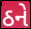
ઠને